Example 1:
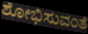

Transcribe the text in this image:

ಶೋಭಿಸುವಂತೆ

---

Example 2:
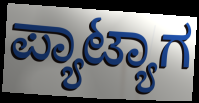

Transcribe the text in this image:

ಪ್ಯಾಟ್ಯಾಗ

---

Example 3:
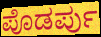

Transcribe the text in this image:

ಪೊಡರ್ಪು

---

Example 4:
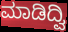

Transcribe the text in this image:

ಮಾಡಿದ್ವಿ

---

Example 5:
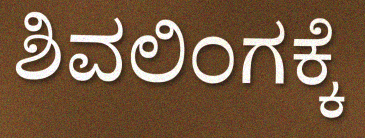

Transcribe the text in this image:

ಶಿವಲಿಂಗಕ್ಕೆ